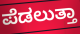
ಪೆಡಲುತ್ತಾ